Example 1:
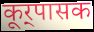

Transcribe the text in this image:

कूर्पासक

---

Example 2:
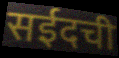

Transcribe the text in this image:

सईदची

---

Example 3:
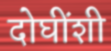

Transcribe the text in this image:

दोघींशी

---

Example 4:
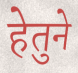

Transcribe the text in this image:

हेतुने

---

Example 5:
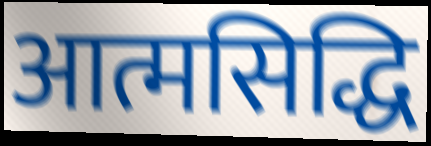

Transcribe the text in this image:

आत्मसिद्धि